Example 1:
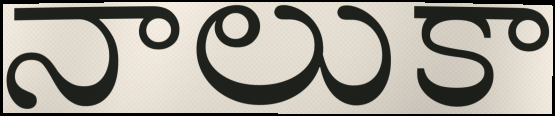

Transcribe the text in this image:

నాలుకా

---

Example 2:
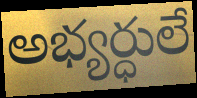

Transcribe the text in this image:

అభ్యర్ధులే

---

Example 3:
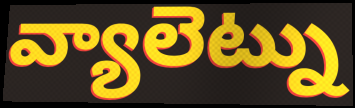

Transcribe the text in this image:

వ్యాలెట్ను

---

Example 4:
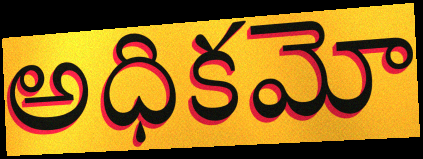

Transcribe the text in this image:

అధికమో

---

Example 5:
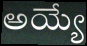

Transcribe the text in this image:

అయ్యే